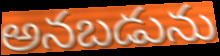
అనబడును